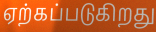
ஏற்கப்படுகிறது